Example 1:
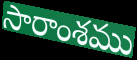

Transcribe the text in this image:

సారాంశము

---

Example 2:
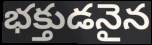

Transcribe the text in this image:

భక్తుడనైన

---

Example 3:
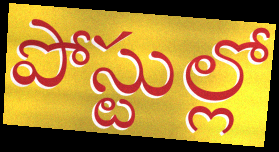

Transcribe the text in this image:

పోస్టుల్లో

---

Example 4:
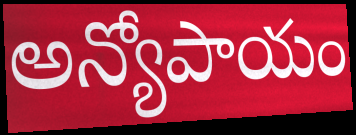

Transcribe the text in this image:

అన్యోపాయం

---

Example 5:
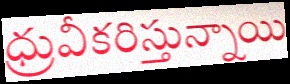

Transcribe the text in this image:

ధ్రువీకరిస్తున్నాయి